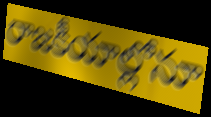
రాజకీయాల్లోనూ